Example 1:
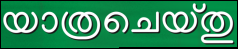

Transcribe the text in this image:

യാത്രചെയ്തു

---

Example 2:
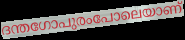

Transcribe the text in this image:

ദന്തഗോപുരംപോലെയാണ്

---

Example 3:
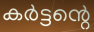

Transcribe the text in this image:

കർട്ടന്റെ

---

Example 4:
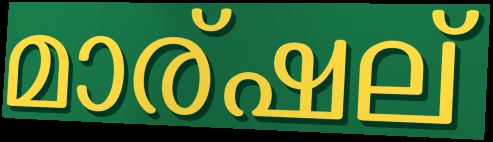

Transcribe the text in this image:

മാര്ഷല്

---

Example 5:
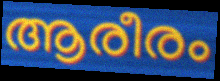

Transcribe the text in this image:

ആരീരം